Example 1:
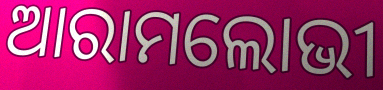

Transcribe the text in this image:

ଆରାମଲୋଭୀ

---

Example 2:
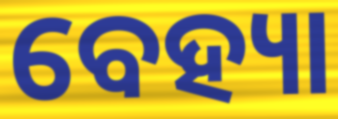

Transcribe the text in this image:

ବେହ୍ୟା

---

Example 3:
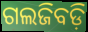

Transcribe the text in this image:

ଗଲଜିବଡ଼ି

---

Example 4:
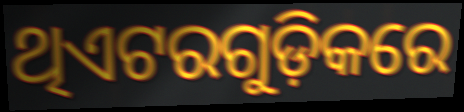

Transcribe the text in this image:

ଥିଏଟରଗୁଡ଼ିକରେ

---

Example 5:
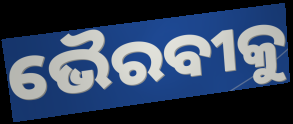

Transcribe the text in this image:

ଭୈରବୀକୁ